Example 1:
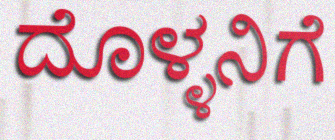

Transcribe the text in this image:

ದೊಳ್ಳನಿಗೆ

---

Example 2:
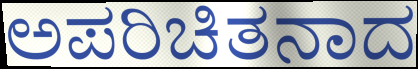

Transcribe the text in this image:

ಅಪರಿಚಿತನಾದ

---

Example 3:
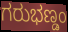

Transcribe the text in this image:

ಗರುಭಣ್ಡಂ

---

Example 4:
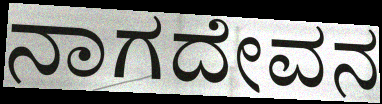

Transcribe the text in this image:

ನಾಗದೇವನ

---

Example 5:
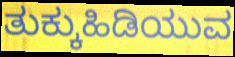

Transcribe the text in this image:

ತುಕ್ಕುಹಿಡಿಯುವ